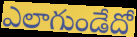
ఎలాగుండేదో